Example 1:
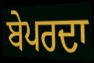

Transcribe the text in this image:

ਬੇਪਰਦਾ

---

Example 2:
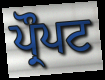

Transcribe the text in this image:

ਪ੍ਰੌਪਟ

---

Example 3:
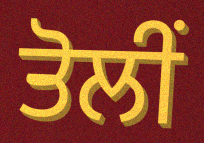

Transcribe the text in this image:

ਤੋਲੀਂ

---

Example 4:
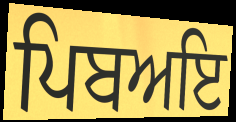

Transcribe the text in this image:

ਪਿਬਅਇ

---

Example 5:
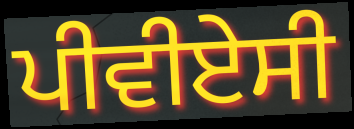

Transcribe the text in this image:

ਪੀਵੀਏਸੀ